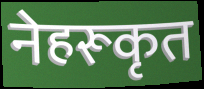
नेहरूकृत